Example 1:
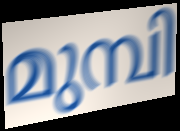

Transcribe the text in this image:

മുമ്പി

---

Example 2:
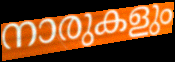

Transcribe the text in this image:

നാരുകളും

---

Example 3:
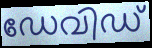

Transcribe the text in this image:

ഡേവിഡ്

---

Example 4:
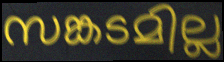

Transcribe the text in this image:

സങ്കടമില്ല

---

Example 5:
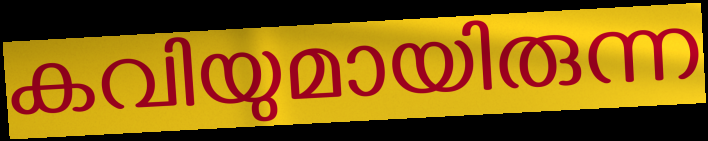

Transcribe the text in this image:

കവിയുമായിരുന്ന